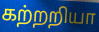
கற்றறியா